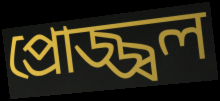
প্ৰোজ্জ্বল